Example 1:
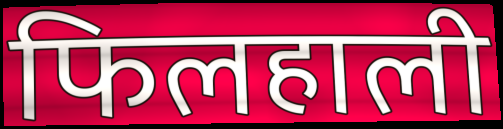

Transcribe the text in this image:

फिलहाली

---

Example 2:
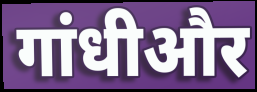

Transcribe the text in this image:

गांधीऔर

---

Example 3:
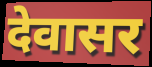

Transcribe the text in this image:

देवासर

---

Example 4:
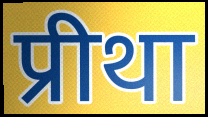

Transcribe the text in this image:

प्रीथा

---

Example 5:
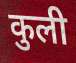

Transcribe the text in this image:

कुली